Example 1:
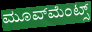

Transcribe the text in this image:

ಮೂವ್‌ಮೆಂಟ್ಸ್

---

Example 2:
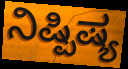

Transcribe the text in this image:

ನಿಷ್ಪಿಷ್ಯ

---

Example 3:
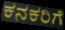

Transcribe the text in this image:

ಕನಕರಿಗೆ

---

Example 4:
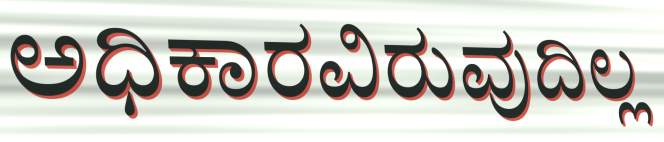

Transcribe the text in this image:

ಅಧಿಕಾರವಿರುವುದಿಲ್ಲ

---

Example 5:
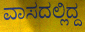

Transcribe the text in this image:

ವಾಸದಲ್ಲಿದ್ದ